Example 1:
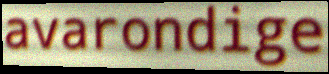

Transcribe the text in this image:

avarondige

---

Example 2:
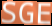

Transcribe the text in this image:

SGE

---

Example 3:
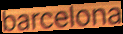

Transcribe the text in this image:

barcelona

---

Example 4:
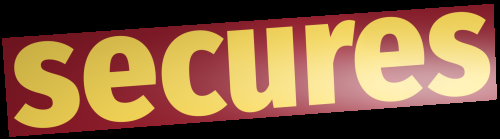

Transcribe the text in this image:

secures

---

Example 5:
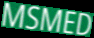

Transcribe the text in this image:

MSMED